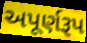
અપૂર્ણરૂપ